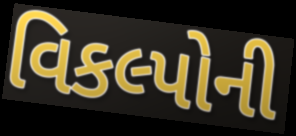
વિકલ્પોની